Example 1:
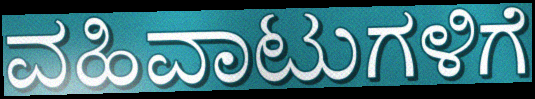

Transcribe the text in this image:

ವಹಿವಾಟುಗಳಿಗೆ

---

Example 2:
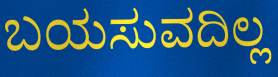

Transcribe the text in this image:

ಬಯಸುವದಿಲ್ಲ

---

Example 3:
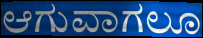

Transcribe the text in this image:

ಆಗುವಾಗಲೂ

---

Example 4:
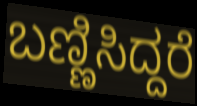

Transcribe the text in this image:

ಬಣ್ಣಿಸಿದ್ದರೆ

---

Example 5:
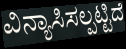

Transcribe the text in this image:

ವಿನ್ಯಾಸಿಸಲ್ಪಟ್ಟಿದೆ